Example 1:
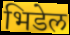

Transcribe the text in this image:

भिडेल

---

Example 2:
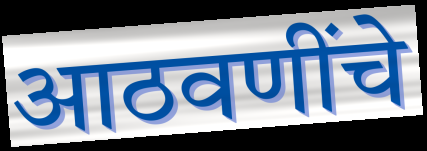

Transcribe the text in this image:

आठवणींचे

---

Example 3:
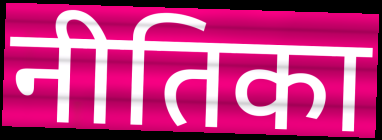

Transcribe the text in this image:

नीतिका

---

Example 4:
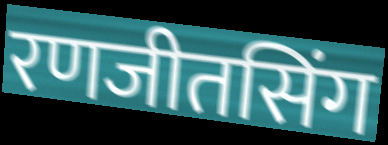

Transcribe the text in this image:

रणजीतसिंग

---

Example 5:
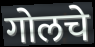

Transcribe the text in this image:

गोलचे